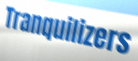
Tranquilizers